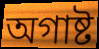
অগাষ্ট